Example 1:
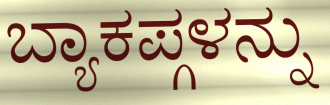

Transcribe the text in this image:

ಬ್ಯಾಕಪ್ಗಳನ್ನು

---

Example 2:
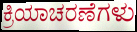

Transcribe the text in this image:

ಕ್ರಿಯಾಚರಣೆಗಳು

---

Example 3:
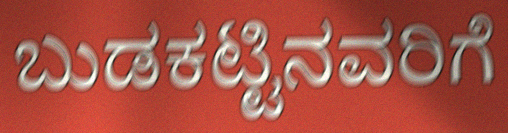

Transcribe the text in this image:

ಬುಡಕಟ್ಟಿನವರಿಗೆ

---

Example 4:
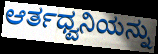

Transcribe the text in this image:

ಆರ್ತಧ್ವನಿಯನ್ನು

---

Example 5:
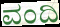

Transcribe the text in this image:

ವಂದಿ